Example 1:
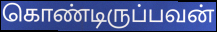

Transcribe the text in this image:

கொண்டிருப்பவன்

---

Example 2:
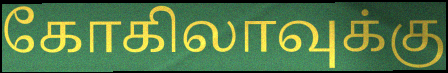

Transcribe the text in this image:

கோகிலாவுக்கு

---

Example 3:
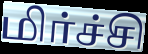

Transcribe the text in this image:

மிர்ச்சி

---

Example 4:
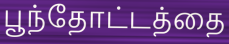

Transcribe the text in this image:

பூந்தோட்டத்தை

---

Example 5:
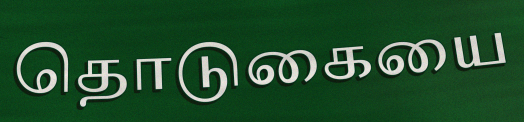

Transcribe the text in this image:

தொடுகையை